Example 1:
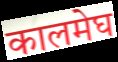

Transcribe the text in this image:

कालमेघ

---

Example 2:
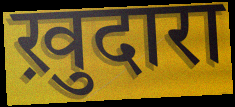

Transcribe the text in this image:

ख़ुदारा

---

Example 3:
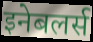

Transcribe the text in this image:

इनेबलर्स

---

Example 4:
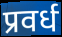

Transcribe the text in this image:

प्रवर्ध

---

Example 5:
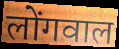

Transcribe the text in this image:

लोंगवाल